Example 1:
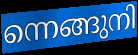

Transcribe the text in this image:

ന്നെങ്ങുനി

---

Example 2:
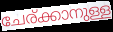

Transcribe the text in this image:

ചേര്ക്കാനുള്ള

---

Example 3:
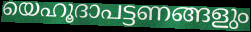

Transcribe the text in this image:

യെഹൂദാപട്ടണങ്ങളും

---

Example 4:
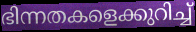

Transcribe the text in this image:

ഭിന്നതകളെക്കുറിച്ച്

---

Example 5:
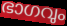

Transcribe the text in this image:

ഭാഗവും